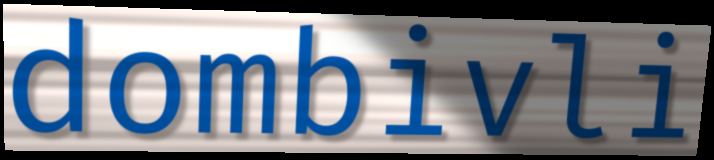
dombivli